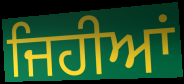
ਜਿਹੀਆਂ